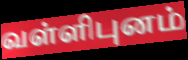
வள்ளிபுனம்